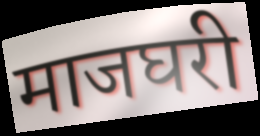
माजघरी